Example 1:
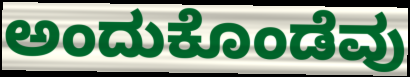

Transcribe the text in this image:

ಅಂದುಕೊಂಡೆವು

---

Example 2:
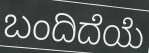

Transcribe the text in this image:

ಬಂದಿದೆಯೆ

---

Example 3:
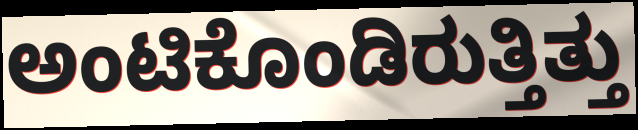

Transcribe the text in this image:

ಅಂಟಿಕೊಂಡಿರುತ್ತಿತ್ತು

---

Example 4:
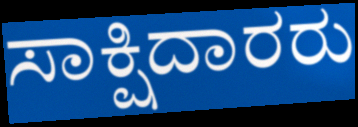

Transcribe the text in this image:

ಸಾಕ್ಷಿದಾರರು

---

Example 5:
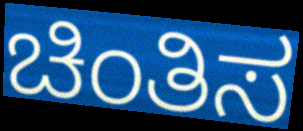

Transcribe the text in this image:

ಚಿಂತಿಸ